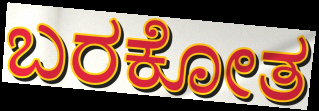
ಬರಕೋತ